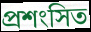
প্ৰশংসিত